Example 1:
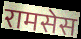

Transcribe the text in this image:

रामसेस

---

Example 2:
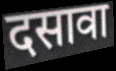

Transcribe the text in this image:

दसावा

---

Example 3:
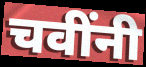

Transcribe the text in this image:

चवींनी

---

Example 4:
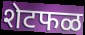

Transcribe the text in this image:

शेटफळ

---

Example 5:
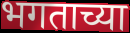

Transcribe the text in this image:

भगताच्या